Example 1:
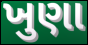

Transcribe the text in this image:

ખુણા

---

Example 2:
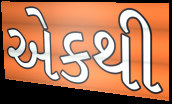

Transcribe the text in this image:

એકથી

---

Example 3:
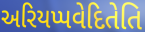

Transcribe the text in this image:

અરિયપ્પવેદિતેતિ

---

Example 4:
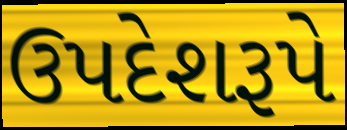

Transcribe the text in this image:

ઉપદેશરૂપે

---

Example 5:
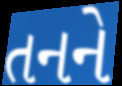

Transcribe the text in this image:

તનને